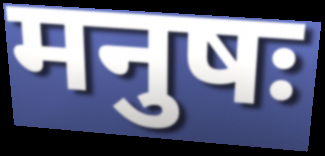
मनुषः